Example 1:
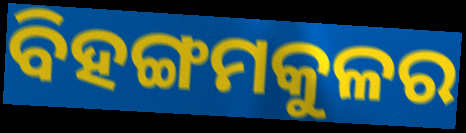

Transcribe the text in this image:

ବିହଙ୍ଗମକୁଳର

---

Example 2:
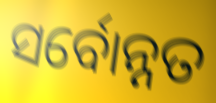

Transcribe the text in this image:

ସର୍ବୋନ୍ନତ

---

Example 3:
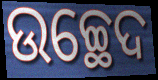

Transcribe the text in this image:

ଉଚ୍ଛେଦ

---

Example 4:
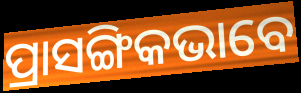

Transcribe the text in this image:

ପ୍ରାସଙ୍ଗିକଭାବେ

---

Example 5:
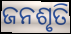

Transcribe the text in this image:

ଜନଶୃତି